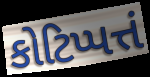
કોટિપ્પત્તં